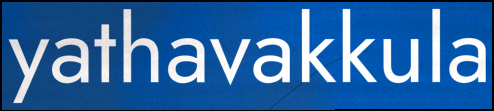
yathavakkula